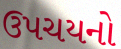
ઉપચયનો